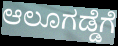
ಆಲೂಗಡ್ಡೆಗೆ